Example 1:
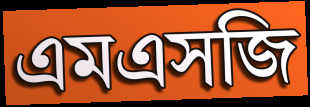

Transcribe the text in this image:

এমএসজি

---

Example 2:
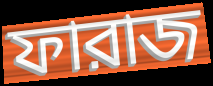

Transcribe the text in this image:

ফারাজ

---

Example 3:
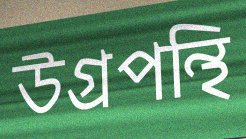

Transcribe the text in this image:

উগ্রপন্থি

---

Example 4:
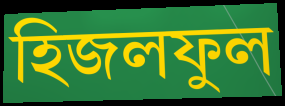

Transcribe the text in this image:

হিজলফুল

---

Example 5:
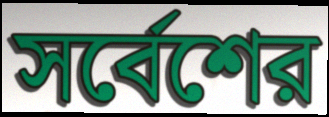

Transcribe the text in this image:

সর্বেশের